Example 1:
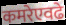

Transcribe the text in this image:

कमरेएवढे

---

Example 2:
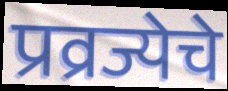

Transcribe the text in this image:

प्रव्रज्येचे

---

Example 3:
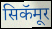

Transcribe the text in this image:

सिकॅमूर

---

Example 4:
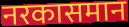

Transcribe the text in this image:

नरकासमान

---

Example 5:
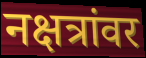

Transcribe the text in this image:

नक्षत्रांवर